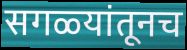
सगळ्यांतूनच